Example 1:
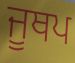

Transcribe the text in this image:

ਜੂਥਪ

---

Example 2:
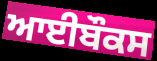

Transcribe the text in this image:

ਆਈਬੌਕਸ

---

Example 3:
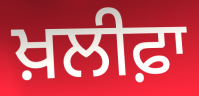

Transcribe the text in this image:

ਖ਼ਲੀਫ਼ਾ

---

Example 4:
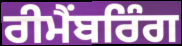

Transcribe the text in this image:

ਰੀਮੈਂਬਰਿੰਗ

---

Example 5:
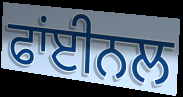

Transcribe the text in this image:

ਫਾਂਈਨਲ